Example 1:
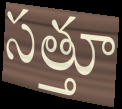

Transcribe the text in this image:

సత్తూ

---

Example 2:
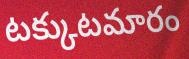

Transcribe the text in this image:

టక్కుటమారం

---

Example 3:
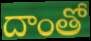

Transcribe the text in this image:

దాంతో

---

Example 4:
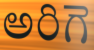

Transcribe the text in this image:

అరిగె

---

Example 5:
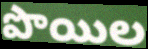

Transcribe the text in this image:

పొయిల